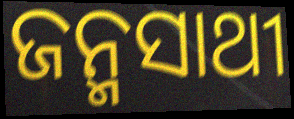
ଜନ୍ମସାଥୀ